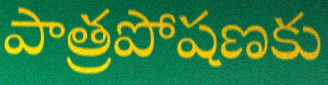
పాత్రపోషణకు